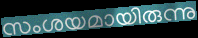
സംശയമായിരുന്നു